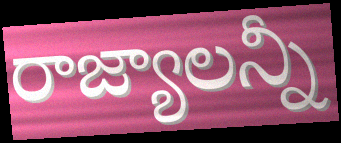
రాజ్యాలన్నీ